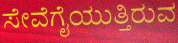
ಸೇವೆಗೈಯುತ್ತಿರುವ